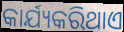
କାର୍ଯ୍ୟକରିଥାଏ